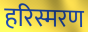
हरिस्मरण